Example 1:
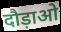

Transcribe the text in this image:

दौड़ाओ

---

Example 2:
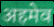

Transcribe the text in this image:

अहमेव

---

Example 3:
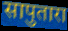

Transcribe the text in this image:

सापुतारा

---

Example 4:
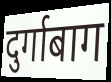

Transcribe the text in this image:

दुर्गाबाग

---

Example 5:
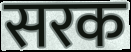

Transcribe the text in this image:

सरक